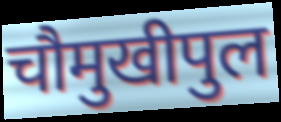
चौमुखीपुल